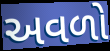
અવળો